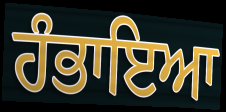
ਹੰਭਾਇਆ